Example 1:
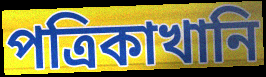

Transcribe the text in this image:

পত্রিকাখানি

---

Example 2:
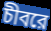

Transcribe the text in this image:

চীবরে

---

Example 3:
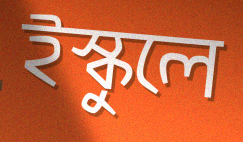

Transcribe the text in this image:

ইস্কুলে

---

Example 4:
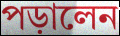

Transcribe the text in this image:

পড়ালেন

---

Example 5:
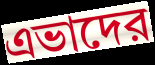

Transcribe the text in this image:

এভাদের